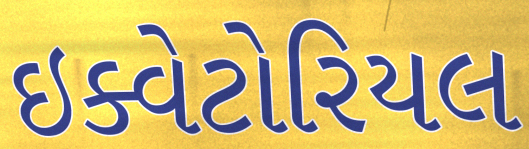
ઇક્વેટોરિયલ